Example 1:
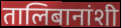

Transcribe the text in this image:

तालिबानांशी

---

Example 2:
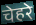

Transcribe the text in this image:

चेहरे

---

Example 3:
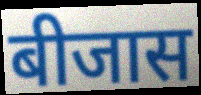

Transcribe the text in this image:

बीजास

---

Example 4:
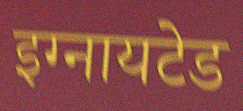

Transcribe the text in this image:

इग्नायटेड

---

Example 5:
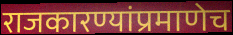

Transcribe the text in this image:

राजकारण्यांप्रमाणेच